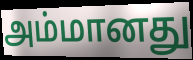
அம்மானது